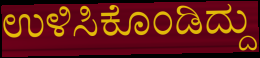
ಉಳಿಸಿಕೊಂಡಿದ್ದು